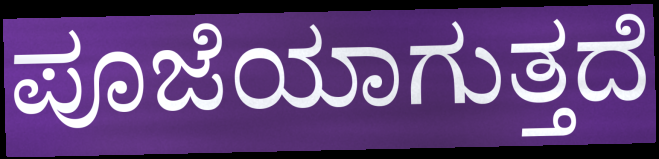
ಪೂಜೆಯಾಗುತ್ತದೆ